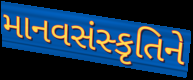
માનવસંસ્કૃતિને